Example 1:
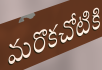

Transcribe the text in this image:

మరొకచోటికి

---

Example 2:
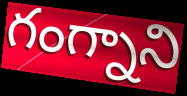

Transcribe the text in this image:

గంగ్నాని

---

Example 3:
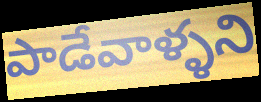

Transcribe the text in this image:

పాడేవాళ్ళని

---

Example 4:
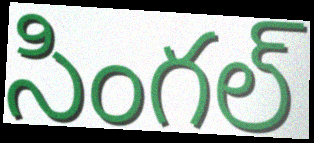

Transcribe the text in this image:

సింగల్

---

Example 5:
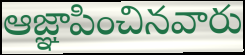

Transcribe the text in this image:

ఆజ్ఞాపించినవారు